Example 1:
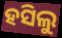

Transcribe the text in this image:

ହସିଲୁ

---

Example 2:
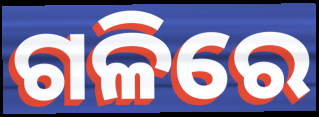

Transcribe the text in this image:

ଗଳିରେ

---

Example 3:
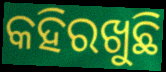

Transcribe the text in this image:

କହିରଖୁଛି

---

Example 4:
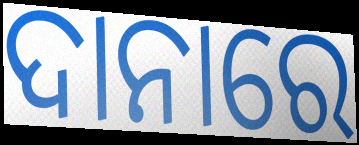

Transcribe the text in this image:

ଦାନାରେ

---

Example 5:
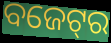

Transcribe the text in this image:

ବଜେଟ୍‌ର